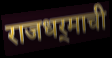
राजधर्माची